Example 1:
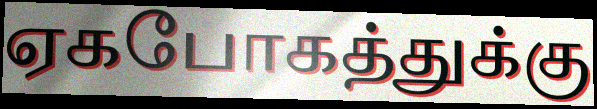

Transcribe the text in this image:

ஏகபோகத்துக்கு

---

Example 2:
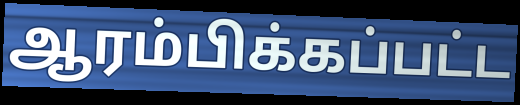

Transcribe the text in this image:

ஆரம்பிக்கப்பட்ட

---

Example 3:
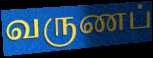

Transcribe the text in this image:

வருணப்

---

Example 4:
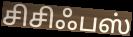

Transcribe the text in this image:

சிசிஃபஸ்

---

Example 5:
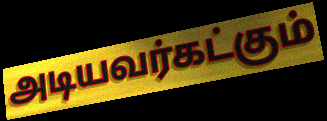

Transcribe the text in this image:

அடியவர்கட்கும்